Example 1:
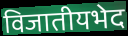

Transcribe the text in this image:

विजातीयभेद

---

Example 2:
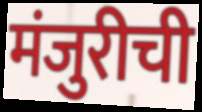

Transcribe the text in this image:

मंजुरीची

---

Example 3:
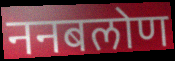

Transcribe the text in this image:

ननबलोण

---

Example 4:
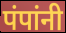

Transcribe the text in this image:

पंपांनी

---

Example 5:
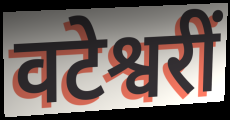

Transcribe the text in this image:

वटेश्वरीं